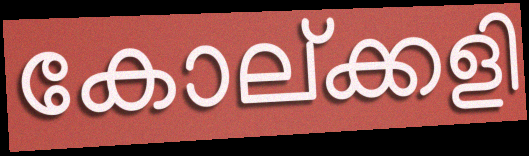
കോല്ക്കളി